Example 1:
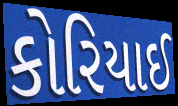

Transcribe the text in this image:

કોરિયાઈ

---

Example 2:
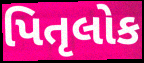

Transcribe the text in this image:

પિતૃલોક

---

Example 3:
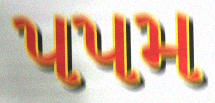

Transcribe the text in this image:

પપમ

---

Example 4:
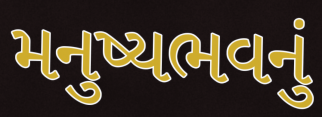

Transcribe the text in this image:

મનુષ્યભવનું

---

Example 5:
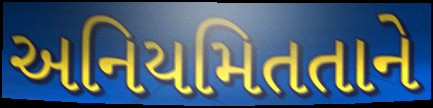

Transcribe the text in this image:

અનિયમિતતાને